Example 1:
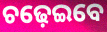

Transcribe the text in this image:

ଚଢ଼େଇବେ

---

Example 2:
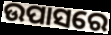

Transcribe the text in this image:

ଉପାସରେ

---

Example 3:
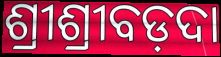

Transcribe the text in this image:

ଶ୍ରୀଶ୍ରୀବଡ଼ଦା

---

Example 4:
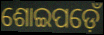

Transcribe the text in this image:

ଶୋଇପଡ଼େଁ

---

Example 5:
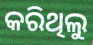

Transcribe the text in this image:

କରିଥିଲୁ